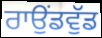
ਰਾਉਂਡਵੁੱਡ